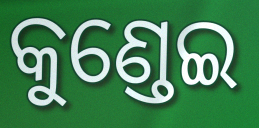
କୁଣ୍ଡେଇ